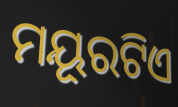
ମୟୂରଟିଏ